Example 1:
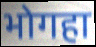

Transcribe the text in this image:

भोगहा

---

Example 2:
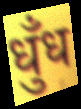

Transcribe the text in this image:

धुँध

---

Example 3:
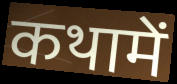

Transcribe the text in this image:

कथामें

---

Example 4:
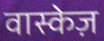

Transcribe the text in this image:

वास्केज़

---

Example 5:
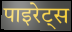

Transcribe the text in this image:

पाइरेट्स